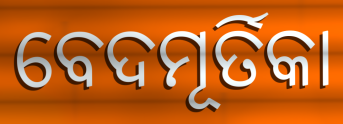
ବେଦମୂର୍ତିକା